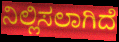
ನಿಲ್ಲಿಸಲಾಗಿದೆ